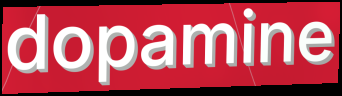
dopamine